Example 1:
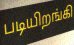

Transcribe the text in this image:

படியிறங்கி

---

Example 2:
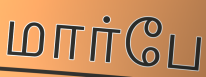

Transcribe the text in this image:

மார்பே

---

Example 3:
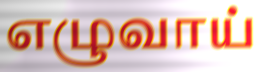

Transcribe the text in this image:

எழுவாய்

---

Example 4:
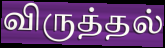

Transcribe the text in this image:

விருத்தல்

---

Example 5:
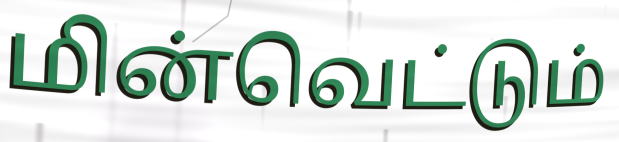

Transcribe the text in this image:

மின்வெட்டும்